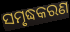
ସମୃଦ୍ଧକରଣ